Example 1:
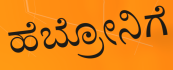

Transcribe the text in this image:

ಹೆಬ್ರೋನಿಗೆ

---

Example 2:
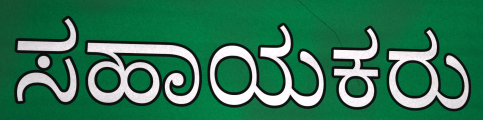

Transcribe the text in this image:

ಸಹಾಯಕರು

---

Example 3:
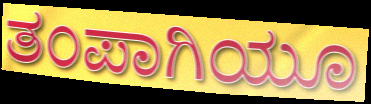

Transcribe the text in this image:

ತಂಪಾಗಿಯೂ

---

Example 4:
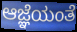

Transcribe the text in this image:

ಆಜ್ಞೆಯಂತೆ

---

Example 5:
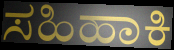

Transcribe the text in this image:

ಸಹಿಹಾಕಿ